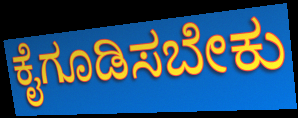
ಕೈಗೂಡಿಸಬೇಕು